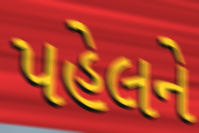
પહેલને